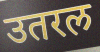
उतरल